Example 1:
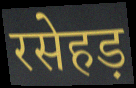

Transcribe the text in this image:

रसेहड़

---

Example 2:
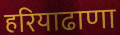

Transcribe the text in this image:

हरियाढाणा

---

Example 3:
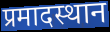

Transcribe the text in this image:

प्रमादस्थान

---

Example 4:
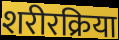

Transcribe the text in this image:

शरीरक्रिया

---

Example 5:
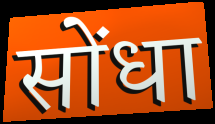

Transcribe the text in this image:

सोंधा